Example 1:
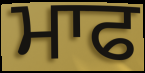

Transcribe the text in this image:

ਮਾਫ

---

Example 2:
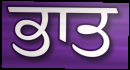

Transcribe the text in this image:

ਭਾਤ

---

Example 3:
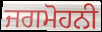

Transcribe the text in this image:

ਜਗਮੋਹਨੀ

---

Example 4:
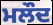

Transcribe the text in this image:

ਮਲੌਦ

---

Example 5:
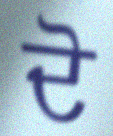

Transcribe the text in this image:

ਦੋ